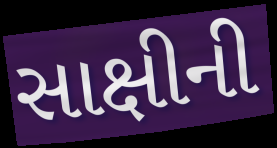
સાક્ષીની